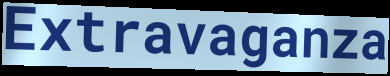
Extravaganza